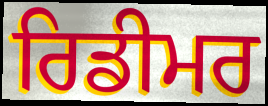
ਰਿਡੀਮਰ